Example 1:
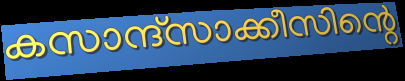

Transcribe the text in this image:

കസാന്ദ്സാക്കീസിന്റെ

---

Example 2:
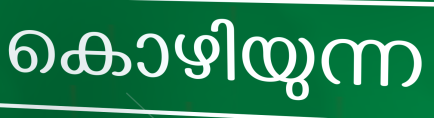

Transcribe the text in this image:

കൊഴിയുന്ന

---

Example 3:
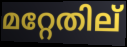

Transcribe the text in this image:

മറ്റേതില്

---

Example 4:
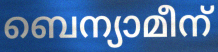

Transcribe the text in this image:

ബെന്യാമീന്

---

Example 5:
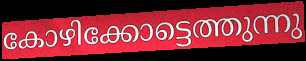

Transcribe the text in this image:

കോഴിക്കോട്ടെത്തുന്നു